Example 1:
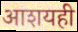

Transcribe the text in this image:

आशयही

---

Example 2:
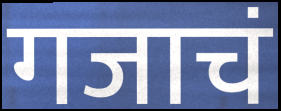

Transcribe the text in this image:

गजाचं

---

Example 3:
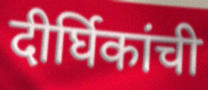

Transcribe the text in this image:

दीर्घिकांची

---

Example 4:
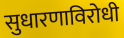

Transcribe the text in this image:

सुधारणाविरोधी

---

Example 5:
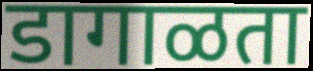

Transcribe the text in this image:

डागाळता